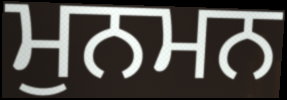
ਮੁਨਮਨ